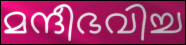
മന്ദീഭവിച്ച